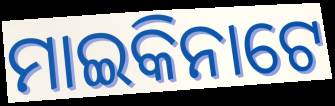
ମାଇକିନାଟେ